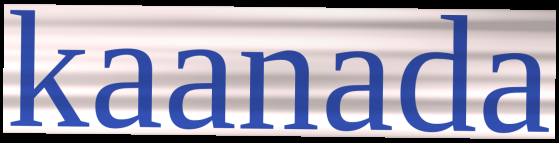
kaanada